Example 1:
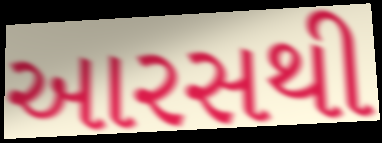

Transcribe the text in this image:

આરસથી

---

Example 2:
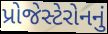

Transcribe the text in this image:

પ્રોજેસ્ટેરોનનું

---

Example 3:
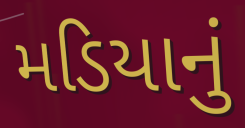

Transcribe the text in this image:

મડિયાનું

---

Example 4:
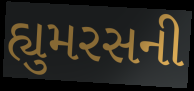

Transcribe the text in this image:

હ્યુમરસની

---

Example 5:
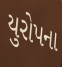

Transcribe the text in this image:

યુરોપના